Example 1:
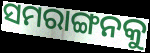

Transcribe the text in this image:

ସମରାଙ୍ଗନକୁ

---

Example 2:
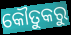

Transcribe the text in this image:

କୌତୁକରୁ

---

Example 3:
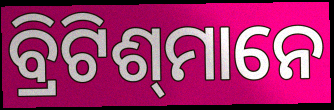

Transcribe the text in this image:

ବ୍ରିଟିଶ୍‍ମାନେ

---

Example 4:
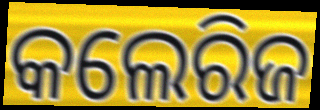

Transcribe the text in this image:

କଲେରିଜ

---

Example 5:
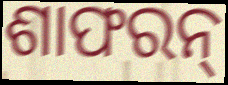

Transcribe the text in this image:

ଶାଫରନ୍